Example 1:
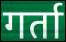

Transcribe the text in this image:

गर्ता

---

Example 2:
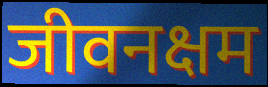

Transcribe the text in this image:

जीवनक्षम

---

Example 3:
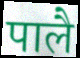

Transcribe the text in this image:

पालै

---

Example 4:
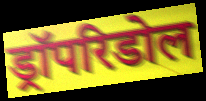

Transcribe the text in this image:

ड्रॉपरिडोल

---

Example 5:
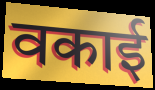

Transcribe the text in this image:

वकाई